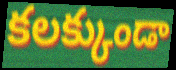
కలక్కుండా